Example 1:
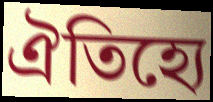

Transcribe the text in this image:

ঐতিহ্যে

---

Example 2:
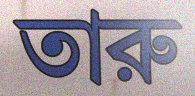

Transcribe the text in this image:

তারু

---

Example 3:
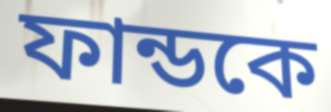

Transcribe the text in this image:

ফান্ডকে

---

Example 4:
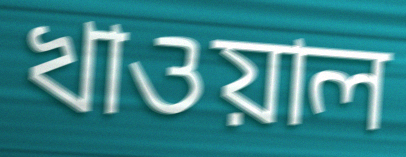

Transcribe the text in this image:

খাওয়াল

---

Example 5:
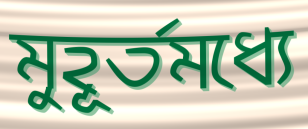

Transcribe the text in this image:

মুহূর্তমধ্যে